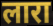
लारा